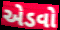
એડવો